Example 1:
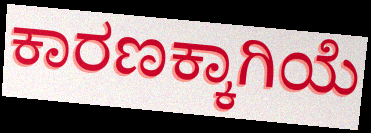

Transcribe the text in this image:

ಕಾರಣಕ್ಕಾಗಿಯೆ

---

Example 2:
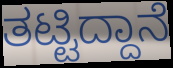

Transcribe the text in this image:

ತಟ್ಟಿದ್ದಾನೆ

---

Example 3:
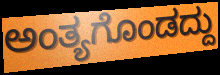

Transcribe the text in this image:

ಅಂತ್ಯಗೊಂಡದ್ದು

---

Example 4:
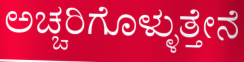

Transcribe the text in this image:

ಅಚ್ಚರಿಗೊಳ್ಳುತ್ತೇನೆ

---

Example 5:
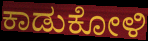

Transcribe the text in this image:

ಕಾಡುಕೋಳಿ